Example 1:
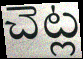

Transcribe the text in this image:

చెట్ల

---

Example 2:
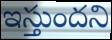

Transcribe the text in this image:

ఇస్తుందని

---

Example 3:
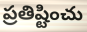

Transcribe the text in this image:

ప్రతిష్టించు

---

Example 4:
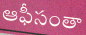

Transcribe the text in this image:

ఆఫీసంతా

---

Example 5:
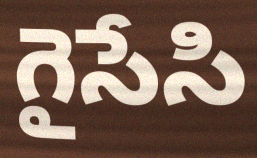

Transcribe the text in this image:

గైసేసి